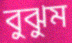
বুঝুম